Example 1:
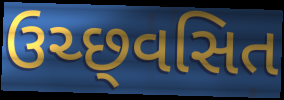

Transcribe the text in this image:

ઉચ્છ્‌વસિત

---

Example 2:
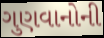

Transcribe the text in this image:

ગુણવાનોની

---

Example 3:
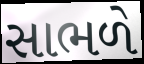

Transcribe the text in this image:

સાભળે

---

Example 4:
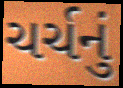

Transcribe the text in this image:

ચર્ચનું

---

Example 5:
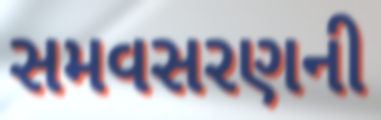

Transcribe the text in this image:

સમવસરણની